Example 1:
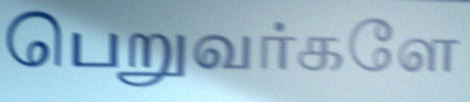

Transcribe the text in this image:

பெறுவர்களே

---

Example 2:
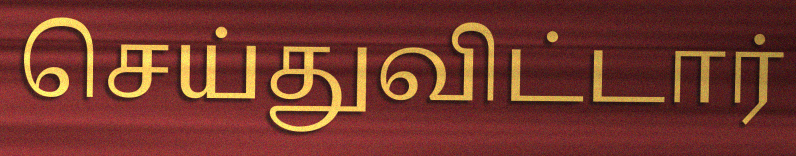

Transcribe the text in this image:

செய்துவிட்டார்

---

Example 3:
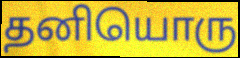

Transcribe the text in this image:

தனியொரு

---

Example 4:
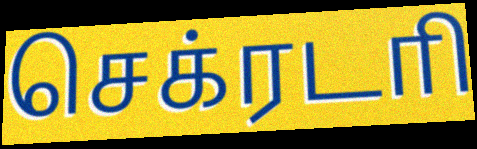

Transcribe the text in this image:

செக்ரடரி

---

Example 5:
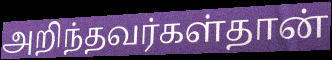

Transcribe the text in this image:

அறிந்தவர்கள்தான்